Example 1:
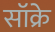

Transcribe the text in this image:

सॉक्रे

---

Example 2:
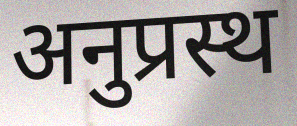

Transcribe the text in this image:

अनुप्रस्थ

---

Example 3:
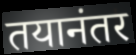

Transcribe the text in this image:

तयानंतर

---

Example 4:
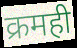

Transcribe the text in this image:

क्रमही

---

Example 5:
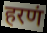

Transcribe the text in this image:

हरणं